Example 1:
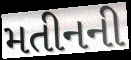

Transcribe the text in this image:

મતીનની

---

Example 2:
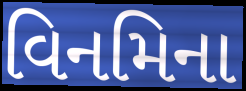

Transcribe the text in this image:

વિનમિના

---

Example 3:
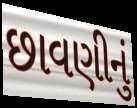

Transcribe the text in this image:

છાવણીનું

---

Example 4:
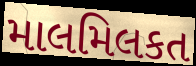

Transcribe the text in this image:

માલમિલકત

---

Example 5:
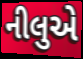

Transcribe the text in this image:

નીલુએ